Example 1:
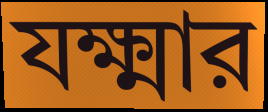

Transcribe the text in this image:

যক্ষ্মার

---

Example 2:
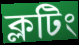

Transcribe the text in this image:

ক্লটিং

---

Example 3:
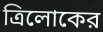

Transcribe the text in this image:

ত্রিলোকের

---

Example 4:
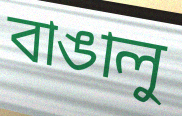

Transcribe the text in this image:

বাঙালু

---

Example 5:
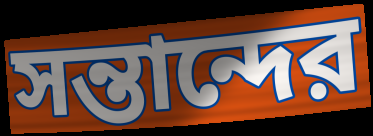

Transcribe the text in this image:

সন্তান্দের